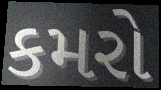
કમરો